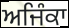
ਅਜਿੰਕਾ